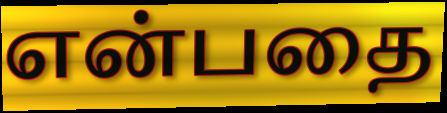
என்பதை